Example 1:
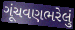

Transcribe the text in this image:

ગૂંચવણભરેલું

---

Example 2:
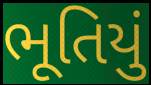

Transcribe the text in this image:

ભૂતિયું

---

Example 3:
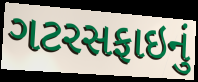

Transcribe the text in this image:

ગટરસફાઇનું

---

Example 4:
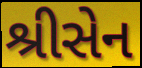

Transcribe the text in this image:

શ્રીસેન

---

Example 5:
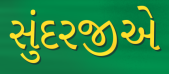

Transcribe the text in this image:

સુંદરજીએ